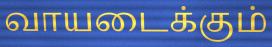
வாயடைக்கும்